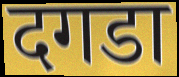
दगडा